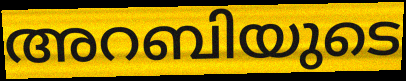
അറബിയുടെ